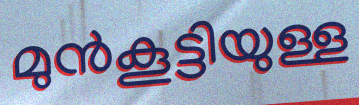
മുൻകൂട്ടിയുള്ള